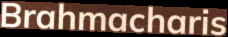
Brahmacharis